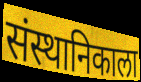
संस्थानिकाला